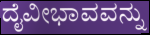
ದೈವೀಭಾವವನ್ನು